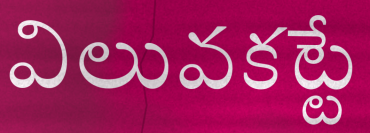
విలువకట్టే